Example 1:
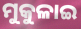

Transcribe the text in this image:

ମୁକୁଳାଇ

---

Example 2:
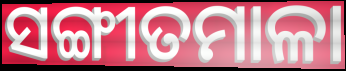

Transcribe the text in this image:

ସଙ୍ଗୀତମାଳା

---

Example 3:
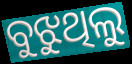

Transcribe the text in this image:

ବୁଝୁଥିଲୁ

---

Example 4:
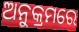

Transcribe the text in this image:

ଅନୁକ୍ରମରେ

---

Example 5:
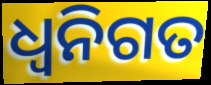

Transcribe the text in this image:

ଧ୍ୱନିଗତ